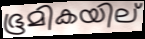
ഭൂമികയില്